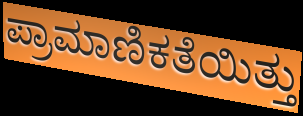
ಪ್ರಾಮಾಣಿಕತೆಯಿತ್ತು